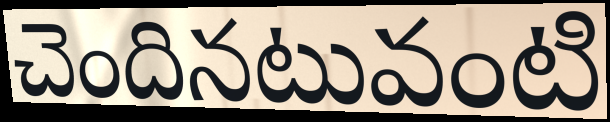
చెందినటువంటి